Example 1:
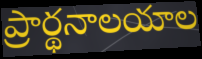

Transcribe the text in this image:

ప్రార్థనాలయాల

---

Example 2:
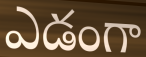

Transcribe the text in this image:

ఎడంగా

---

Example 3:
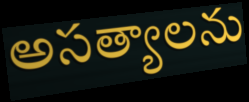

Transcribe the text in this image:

అసత్యాలను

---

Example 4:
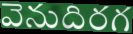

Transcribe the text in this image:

వెనుదిరగ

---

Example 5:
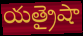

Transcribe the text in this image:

యత్రైషా